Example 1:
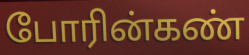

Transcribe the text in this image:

போரின்கண்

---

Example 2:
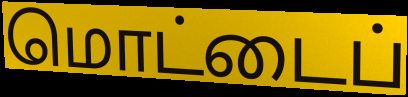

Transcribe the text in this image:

மொட்டைப்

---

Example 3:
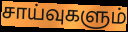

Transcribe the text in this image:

சாய்வுகளும்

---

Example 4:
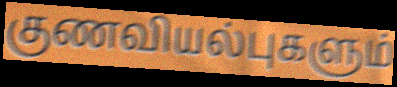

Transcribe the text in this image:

குணவியல்புகளும்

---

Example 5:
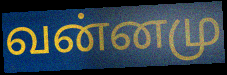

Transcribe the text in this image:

வன்னமு